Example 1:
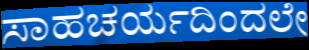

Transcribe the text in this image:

ಸಾಹಚರ್ಯದಿಂದಲೇ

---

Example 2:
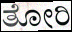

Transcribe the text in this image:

ತೋರಿ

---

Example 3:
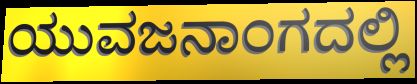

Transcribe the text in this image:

ಯುವಜನಾಂಗದಲ್ಲಿ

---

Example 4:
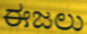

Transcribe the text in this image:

ಈಜಲು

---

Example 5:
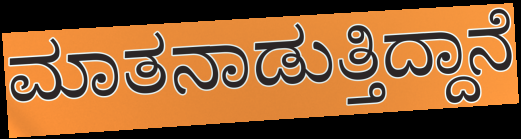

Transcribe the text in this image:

ಮಾತನಾಡುತ್ತಿದ್ದಾನೆ